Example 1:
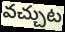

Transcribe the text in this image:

వచ్చుట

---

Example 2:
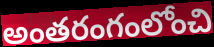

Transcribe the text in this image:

అంతరంగంలోంచి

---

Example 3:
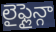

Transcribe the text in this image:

లైఫ్లైన్గా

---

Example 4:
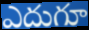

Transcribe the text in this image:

ఎదుగూ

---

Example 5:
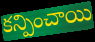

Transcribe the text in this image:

కన్పించాయి